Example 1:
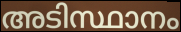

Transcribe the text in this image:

അടിസ്ഥാനം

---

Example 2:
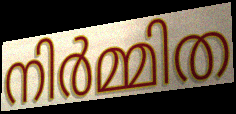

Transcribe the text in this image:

നിർമ്മിത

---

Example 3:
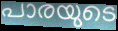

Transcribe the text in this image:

പാരയുടെ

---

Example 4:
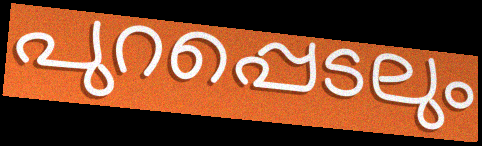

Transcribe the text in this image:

പുറപ്പെടലും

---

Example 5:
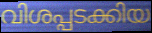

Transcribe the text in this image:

വിശപ്പടക്കിയ